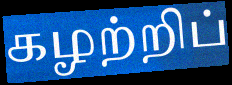
கழற்றிப்